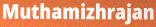
Muthamizhrajan